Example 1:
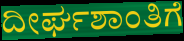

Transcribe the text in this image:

ದೀರ್ಘಶಾಂತಿಗೆ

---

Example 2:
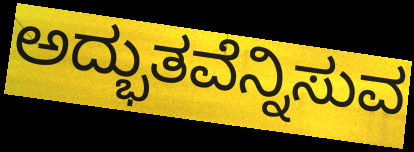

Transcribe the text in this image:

ಅದ್ಭುತವೆನ್ನಿಸುವ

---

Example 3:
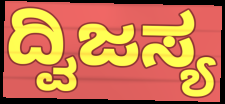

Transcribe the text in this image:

ದ್ವಿಜಸ್ಯ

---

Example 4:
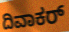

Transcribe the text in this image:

ದಿವಾಕರ್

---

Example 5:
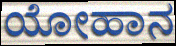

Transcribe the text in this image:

ಯೋಹಾನ